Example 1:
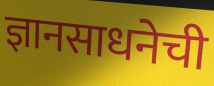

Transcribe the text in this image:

ज्ञानसाधनेची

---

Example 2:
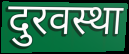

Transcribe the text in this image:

दुरवस्था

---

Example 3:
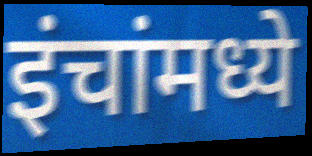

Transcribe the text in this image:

इंचांमध्ये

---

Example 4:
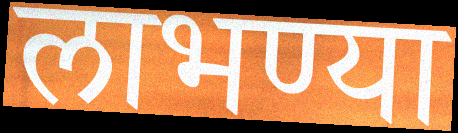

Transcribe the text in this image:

लाभण्या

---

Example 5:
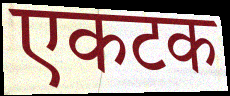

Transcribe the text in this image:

एकटक